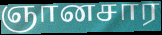
ஞானசார